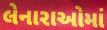
લેનારાઓમાં